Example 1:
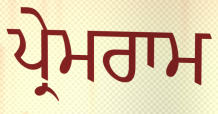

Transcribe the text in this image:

ਪ੍ਰੇਮਰਾਮ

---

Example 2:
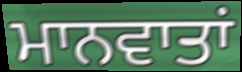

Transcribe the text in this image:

ਮਾਨਵਾਤਾਂ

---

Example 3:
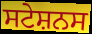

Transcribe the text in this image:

ਸਟੇਸ਼ਨਸ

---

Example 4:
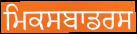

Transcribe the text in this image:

ਮਿਕਸਬਾਡਰਸ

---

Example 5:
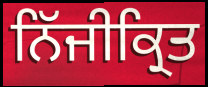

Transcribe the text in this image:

ਨਿੱਜੀਕ੍ਰਿਤ